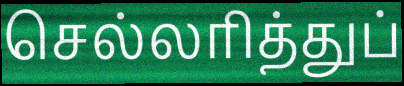
செல்லரித்துப்